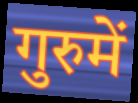
गुरुमें